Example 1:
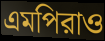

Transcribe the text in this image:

এমপিরাও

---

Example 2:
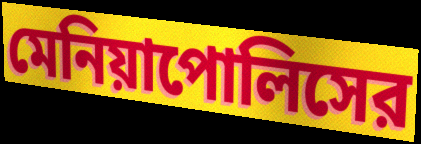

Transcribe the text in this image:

মেনিয়াপোলিসের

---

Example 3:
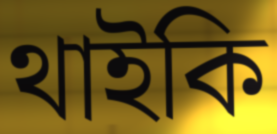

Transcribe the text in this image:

থাইকি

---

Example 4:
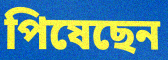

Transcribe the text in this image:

পিষেছেন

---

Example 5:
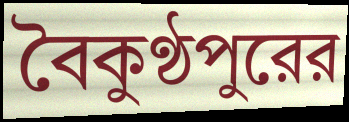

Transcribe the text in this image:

বৈকুণ্ঠপুরের